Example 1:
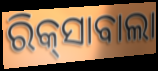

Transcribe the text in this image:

ରିକ୍‍ସାବାଲା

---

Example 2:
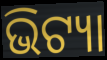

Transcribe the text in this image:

ଭିଟ୍ୟା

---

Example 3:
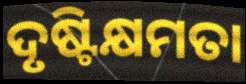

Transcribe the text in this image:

ଦୃଷ୍ଟିକ୍ଷମତା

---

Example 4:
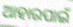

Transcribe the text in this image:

ଆହାରପାଇଁ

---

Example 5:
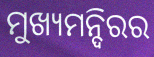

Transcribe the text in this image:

ମୁଖ୍ୟମନ୍ଦିରର